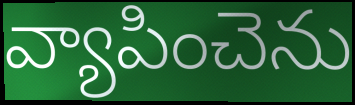
వ్యాపించెను